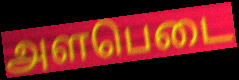
அளபெடை